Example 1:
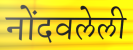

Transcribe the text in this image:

नोंदवलेली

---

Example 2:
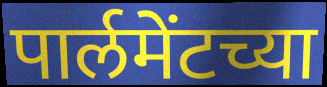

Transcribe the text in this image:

पार्लमेंटच्या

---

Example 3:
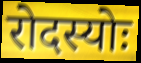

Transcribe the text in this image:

रोदस्योः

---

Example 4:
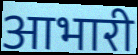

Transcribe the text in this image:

आभारी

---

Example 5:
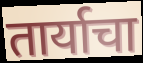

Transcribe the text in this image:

तार्याचा